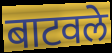
बाटवले